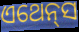
ଏଥେନ୍‌ସ